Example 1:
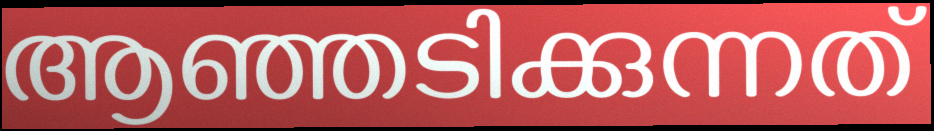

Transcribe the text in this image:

ആഞ്ഞടിക്കുന്നത്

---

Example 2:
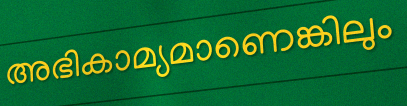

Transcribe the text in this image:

അഭികാമ്യമാണെങ്കിലും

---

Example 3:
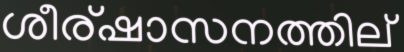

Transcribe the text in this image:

ശീര്ഷാസനത്തില്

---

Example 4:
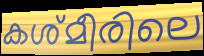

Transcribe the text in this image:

കശ്മീരിലെ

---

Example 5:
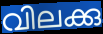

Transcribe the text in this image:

വിലക്കു